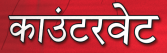
काउंटरवेट